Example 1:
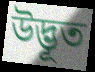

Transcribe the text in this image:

উদ্ভূত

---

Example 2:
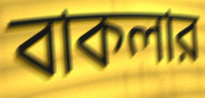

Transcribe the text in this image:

বাকলার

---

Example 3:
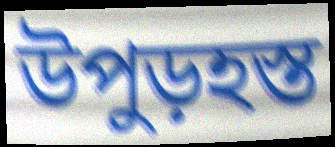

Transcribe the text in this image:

উপুড়হস্ত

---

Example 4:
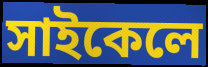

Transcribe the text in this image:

সাইকেলে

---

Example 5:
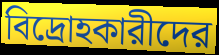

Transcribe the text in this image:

বিদ্রোহকারীদের